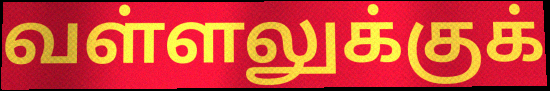
வள்ளலுக்குக்